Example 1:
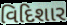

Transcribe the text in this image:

વિદિશાર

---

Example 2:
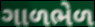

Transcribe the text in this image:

ગાળભેળ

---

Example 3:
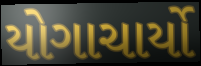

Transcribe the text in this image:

યોગાચાર્યો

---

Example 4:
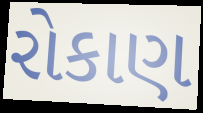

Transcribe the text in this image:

રોકાણ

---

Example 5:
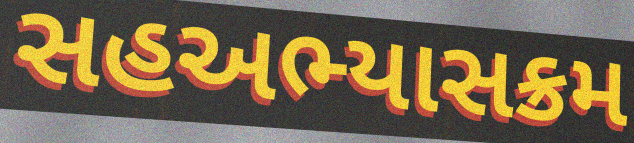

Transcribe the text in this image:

સહઅભ્યાસક્રમ